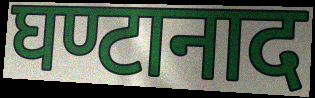
घण्टानाद